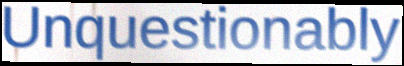
Unquestionably